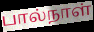
பால்நாள்